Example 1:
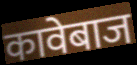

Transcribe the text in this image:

कावेबाज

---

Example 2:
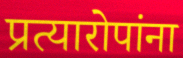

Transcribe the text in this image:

प्रत्यारोपांना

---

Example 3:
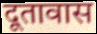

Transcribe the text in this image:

दूतावास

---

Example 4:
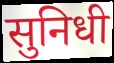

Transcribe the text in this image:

सुनिधी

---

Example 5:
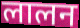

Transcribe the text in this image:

लालन